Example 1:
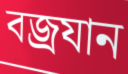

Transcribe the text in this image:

বজ্রযান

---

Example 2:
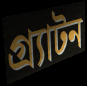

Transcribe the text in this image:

গ্র্যাটন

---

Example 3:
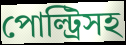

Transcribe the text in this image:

পোল্ট্রিসহ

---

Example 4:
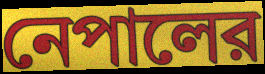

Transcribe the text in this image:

নেপালের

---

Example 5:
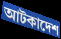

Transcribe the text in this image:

আটকাদেশ